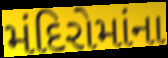
મંદિરોમાંના